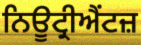
ਨਿਊਟ੍ਰੀਐਂਟਜ਼